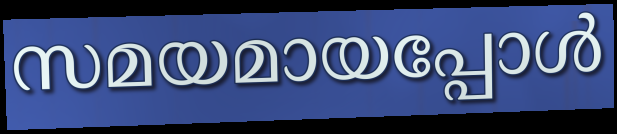
സമയമായപ്പോൾ